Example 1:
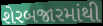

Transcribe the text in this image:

શેરબજારમાંથી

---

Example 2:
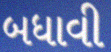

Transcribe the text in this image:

બધાવી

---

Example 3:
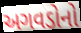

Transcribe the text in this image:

અગવડોનો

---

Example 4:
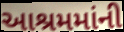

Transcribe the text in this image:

આશ્રમમાંની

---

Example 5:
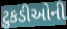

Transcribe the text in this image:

ટુકડીઓની